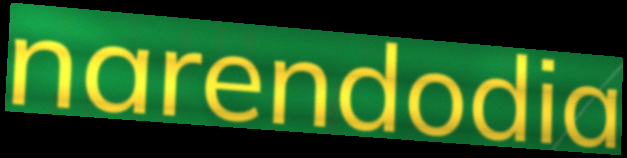
narendodia